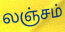
லஞ்சம்